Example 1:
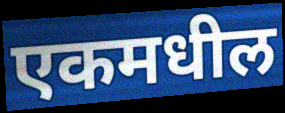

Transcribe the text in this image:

एकमधील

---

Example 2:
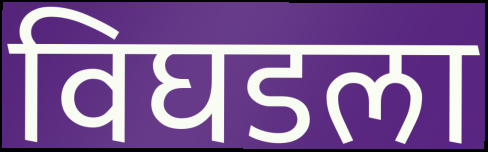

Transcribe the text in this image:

विघडला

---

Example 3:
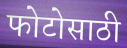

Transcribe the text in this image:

फोटोसाठी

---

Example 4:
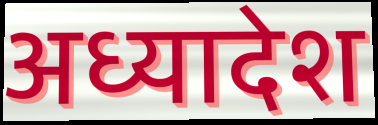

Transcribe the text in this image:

अध्यादेश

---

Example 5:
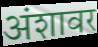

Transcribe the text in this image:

अंशावर